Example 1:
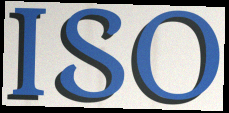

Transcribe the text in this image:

ISO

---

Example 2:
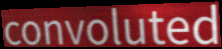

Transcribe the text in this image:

convoluted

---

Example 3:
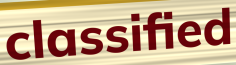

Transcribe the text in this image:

classified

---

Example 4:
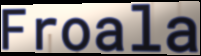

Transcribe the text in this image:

Froala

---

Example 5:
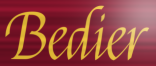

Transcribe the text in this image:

Bedier